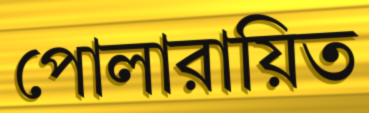
পোলারায়িত